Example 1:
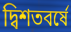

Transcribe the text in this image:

দ্বিশতবর্ষে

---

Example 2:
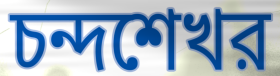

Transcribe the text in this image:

চন্দশেখর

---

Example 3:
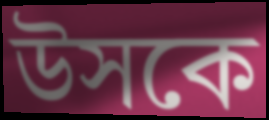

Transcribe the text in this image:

উসকে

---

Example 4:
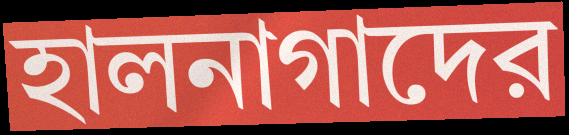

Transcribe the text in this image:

হালনাগাদের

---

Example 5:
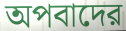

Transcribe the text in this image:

অপবাদের